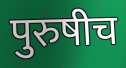
पुरुषीच